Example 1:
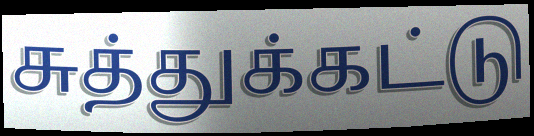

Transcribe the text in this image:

சுத்துக்கட்டு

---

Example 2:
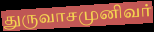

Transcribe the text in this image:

துருவாசமுனிவர்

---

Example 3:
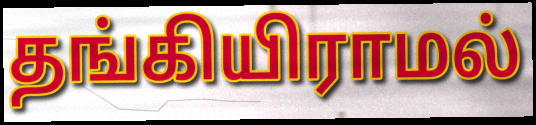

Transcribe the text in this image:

தங்கியிராமல்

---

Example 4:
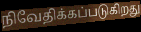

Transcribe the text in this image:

நிவேதிக்கப்படுகிறது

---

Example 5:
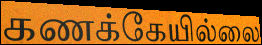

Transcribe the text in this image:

கணக்கேயில்லை